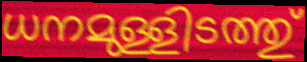
ധനമുള്ളിടത്തു്